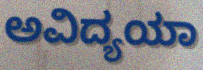
ಅವಿದ್ಯಯಾ